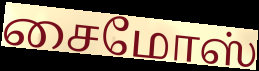
சைமோஸ்